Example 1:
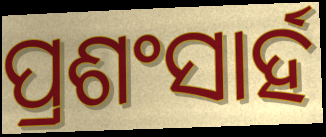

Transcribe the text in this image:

ପ୍ରଶଂସାର୍ହ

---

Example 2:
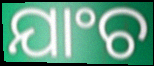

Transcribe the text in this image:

ଯାଂଚ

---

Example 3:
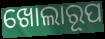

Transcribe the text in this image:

ଖୋଲାରୂପ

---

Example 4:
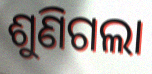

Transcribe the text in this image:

ଶୁଣିଗଲା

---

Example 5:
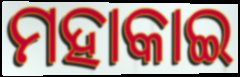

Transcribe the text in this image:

ମହାକାଇ